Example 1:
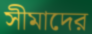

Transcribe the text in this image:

সীমাদের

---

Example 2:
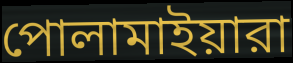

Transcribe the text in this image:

পোলামাইয়ারা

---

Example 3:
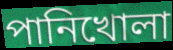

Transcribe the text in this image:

পানিখোলা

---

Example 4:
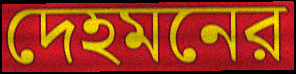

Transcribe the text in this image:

দেহমনের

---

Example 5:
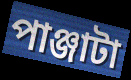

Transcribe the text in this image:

পাঞ্জাটা